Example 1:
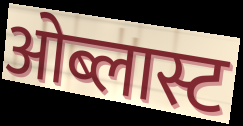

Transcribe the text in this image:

ओब्लास्ट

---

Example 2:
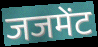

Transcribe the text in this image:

जजमेंट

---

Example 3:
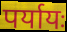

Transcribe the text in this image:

पर्यायः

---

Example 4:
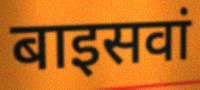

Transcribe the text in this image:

बाइसवां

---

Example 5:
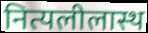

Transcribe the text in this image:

नित्यलीलास्थ